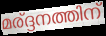
മര്ദ്ദനത്തിന്